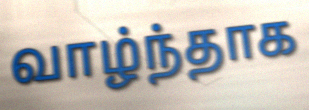
வாழ்ந்தாக